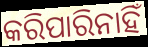
କରିପାରିନାହିଁ